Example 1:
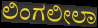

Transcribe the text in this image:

ಲಿಂಗಲೀಲಾ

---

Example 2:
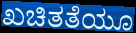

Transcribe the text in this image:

ಖಚಿತತೆಯೂ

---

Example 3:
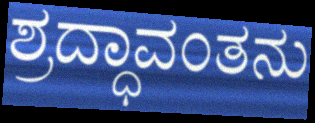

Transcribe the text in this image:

ಶ್ರದ್ಧಾವಂತನು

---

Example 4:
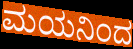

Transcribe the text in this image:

ಮಯನಿಂದ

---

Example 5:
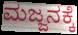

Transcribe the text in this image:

ಮಜ್ಜನಕ್ಕೆ